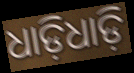
ଧାଡ଼ିଧାଡ଼ି